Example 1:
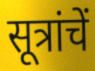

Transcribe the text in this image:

सूत्रांचें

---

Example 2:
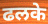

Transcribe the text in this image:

ढलके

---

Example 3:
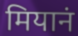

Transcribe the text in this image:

मियानं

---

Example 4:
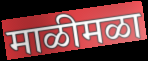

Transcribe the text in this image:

माळीमळा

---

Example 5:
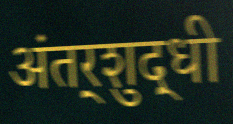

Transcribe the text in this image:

अंतर्शुद्धी